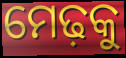
ମେଢ଼କୁ